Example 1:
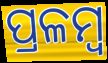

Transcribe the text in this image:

ପ୍ରଳମ୍ବ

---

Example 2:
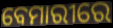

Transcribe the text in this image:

ବେମାରୀରେ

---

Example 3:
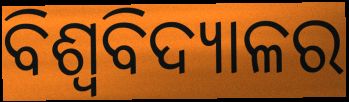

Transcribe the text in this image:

ବିଶ୍ୱବିଦ୍ୟାଳର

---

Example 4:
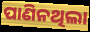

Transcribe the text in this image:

ପାଣିନଥିଲା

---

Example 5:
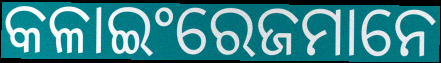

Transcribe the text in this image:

କଳାଇଂରେଜମାନେ